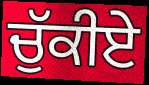
ਚੁੱਕੀਏ